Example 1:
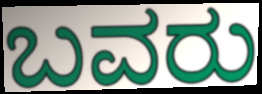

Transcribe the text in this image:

ಬವರು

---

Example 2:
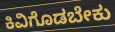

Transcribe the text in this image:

ಕಿವಿಗೊಡಬೇಕು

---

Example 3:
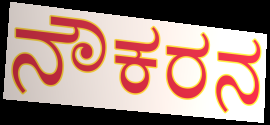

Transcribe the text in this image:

ನೌಕರನ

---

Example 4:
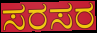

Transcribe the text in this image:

ಸರಸರ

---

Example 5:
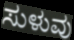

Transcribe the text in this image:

ಸುಳುವು